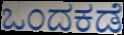
ಒಂದಕಡೆ